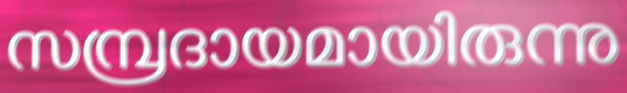
സമ്പ്രദായമായിരുന്നു